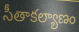
సీతాకల్యాణం